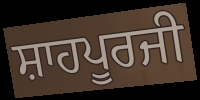
ਸ਼ਾਹਪੂਰਜੀ